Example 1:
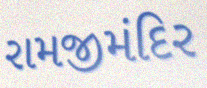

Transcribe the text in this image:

રામજીમંદિર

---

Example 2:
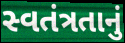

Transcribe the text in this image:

સ્વતંત્રતાનું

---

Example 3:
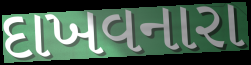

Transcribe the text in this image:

દાખવનારા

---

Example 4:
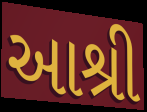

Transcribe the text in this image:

આશ્રી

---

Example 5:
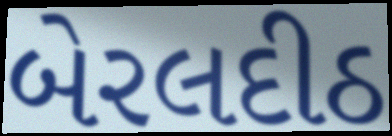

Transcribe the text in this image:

બેરલદીઠ